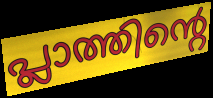
പ്ലാത്തിന്റെ